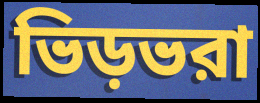
ভিড়ভরা